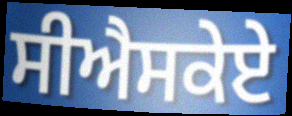
ਸੀਐਸਕੇਏ